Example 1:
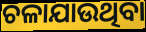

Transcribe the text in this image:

ଚଳାଯାଉଥିବା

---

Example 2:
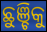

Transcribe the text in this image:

ଛୁଞ୍ଚିକୁ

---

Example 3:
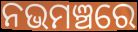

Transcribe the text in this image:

ନଭମଞ୍ଚରେ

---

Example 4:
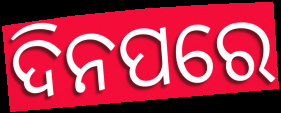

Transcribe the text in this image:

ଦିନପରେ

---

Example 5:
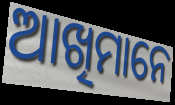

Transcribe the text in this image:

ଆଖିମାନେ